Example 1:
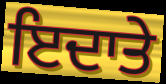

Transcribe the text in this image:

ਇਦਾਤੇ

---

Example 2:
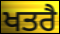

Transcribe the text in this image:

ਖਤਰੈ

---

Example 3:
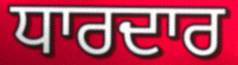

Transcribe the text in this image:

ਧਾਰਦਾਰ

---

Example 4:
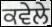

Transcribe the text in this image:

ਕਵੇਲੇ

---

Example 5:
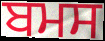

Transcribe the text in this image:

ਬਮਸ